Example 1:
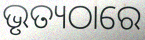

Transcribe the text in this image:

ଭୃତ୍ୟଠାରେ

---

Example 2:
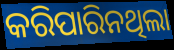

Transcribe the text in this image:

କରିପାରିନଥିଲା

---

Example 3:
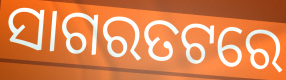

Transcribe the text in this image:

ସାଗରତଟରେ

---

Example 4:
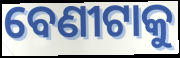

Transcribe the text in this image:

ବେଣୀଟାକୁ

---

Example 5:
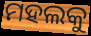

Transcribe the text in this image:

ମହଲକୁ